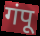
गंपू